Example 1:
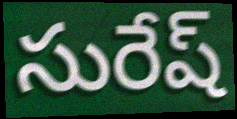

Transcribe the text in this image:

సురేష్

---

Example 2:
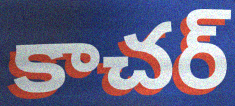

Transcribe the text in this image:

కాచర్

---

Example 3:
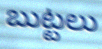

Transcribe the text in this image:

బుట్టలు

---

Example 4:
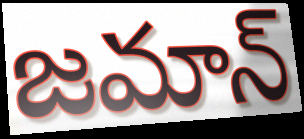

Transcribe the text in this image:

జమాన్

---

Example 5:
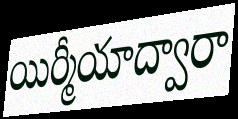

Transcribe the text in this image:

యిర్మీయాద్వారా